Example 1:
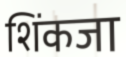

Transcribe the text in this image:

शिंकजा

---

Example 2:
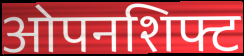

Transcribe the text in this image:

ओपनशिफ्ट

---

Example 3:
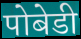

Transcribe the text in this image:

पोबेडी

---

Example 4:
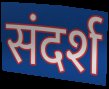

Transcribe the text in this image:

संदर्श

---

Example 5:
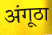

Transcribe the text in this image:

अंगूठा